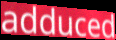
adduced